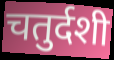
चतुर्दशी